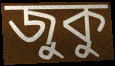
জুকু